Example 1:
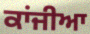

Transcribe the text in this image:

ਕਾਂਜੀਆ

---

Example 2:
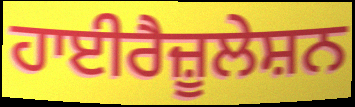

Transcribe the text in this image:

ਹਾਈਰੈਜ਼ੂਲੇਸ਼ਨ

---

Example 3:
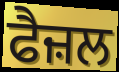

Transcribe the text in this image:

ਫੈਜ਼ਲ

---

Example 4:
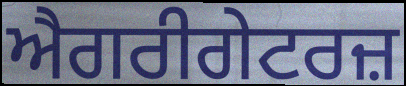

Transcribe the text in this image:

ਐਗਰੀਗੇਟਰਜ਼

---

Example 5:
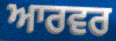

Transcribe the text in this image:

ਆਰਵਰ